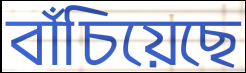
বাঁচিয়েছে